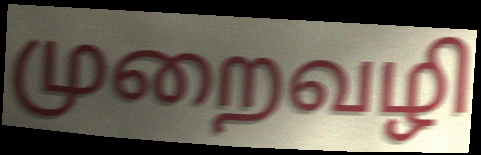
முறைவழி